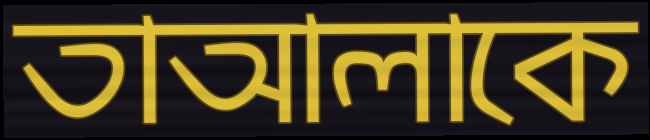
তাআলাকে